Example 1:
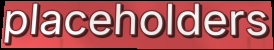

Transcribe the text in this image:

placeholders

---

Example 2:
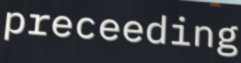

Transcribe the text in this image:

preceeding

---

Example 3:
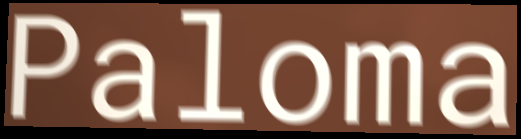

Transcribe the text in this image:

Paloma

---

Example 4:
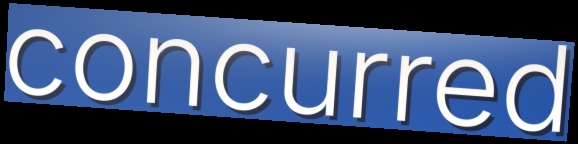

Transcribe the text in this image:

concurred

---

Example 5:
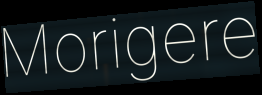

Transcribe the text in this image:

Morigere